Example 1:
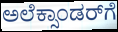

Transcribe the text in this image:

ಅಲೆಕ್ಸಾಂಡರ್‌ಗೆ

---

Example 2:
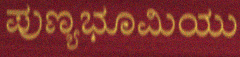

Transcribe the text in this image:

ಪುಣ್ಯಭೂಮಿಯು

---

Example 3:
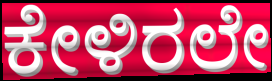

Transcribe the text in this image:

ಕೇಳಿರಲೇ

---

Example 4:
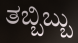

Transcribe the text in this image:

ತಬ್ಬಿಬ್ಬು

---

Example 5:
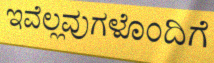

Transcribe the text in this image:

ಇವೆಲ್ಲವುಗಳೊಂದಿಗೆ